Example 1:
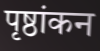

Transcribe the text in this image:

पृष्ठांकन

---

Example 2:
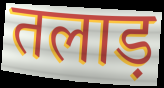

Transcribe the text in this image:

तलाड़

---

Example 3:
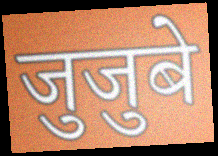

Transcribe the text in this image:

जुजुबे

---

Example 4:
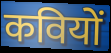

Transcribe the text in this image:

कवियों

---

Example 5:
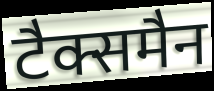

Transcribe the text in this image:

टैक्समैन